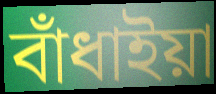
বাঁধাইয়া